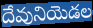
దేవునియెడల